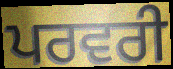
ਪਰਵਰੀ